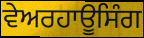
ਵੇਅਰਹਾਊਸਿੰਗ